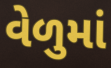
વેળુમાં